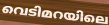
വെടിമറയിലെ